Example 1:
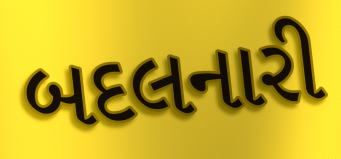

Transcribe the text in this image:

બદલનારી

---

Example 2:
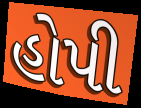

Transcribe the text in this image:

હોપી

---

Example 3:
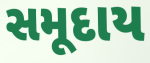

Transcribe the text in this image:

સમૂદાય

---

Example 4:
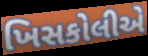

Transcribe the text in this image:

ખિસકોલીએ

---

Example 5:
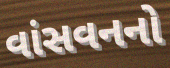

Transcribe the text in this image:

વાંસવનનો